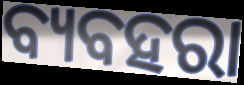
ବ୍ୟବହରା